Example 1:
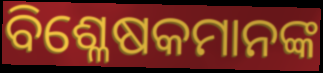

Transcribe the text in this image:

ବିଶ୍ଳେଷକମାନଙ୍କ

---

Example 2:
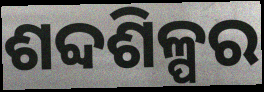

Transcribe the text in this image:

ଶବ୍ଦଶିଳ୍ପର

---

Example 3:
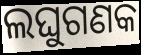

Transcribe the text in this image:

ଲଘୁଗଣକ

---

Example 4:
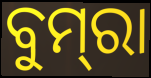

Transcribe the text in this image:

ବୁମ୍‌ରା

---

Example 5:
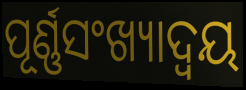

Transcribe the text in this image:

ପୂର୍ଣ୍ଣସଂଖ୍ୟାଦ୍ଵୟ